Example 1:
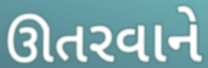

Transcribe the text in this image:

ઊતરવાને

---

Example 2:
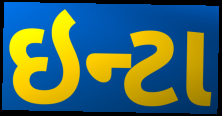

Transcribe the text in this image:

ઇન્ટા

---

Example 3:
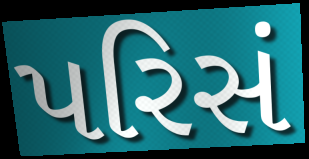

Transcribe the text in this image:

પરિસં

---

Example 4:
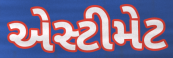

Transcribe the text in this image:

એસ્ટીમેટ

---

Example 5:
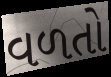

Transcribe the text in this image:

વળતો